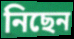
নিছেন